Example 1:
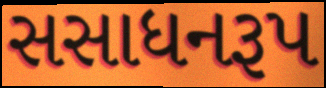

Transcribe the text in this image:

સસાધનરૂપ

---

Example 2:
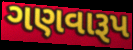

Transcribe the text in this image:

ગણવારૂપ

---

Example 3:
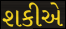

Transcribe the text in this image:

શકીએ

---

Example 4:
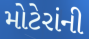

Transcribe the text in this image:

મોટેરાંની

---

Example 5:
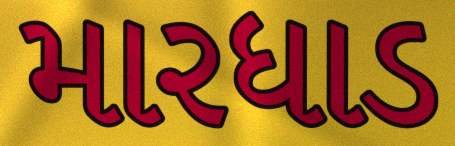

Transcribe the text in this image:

મારધાડ